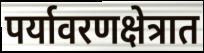
पर्यावरणक्षेत्रात